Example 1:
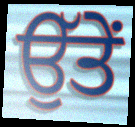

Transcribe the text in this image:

ਉੱਤੇਂ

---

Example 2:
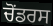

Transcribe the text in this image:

ਚੋਂਡਰਸ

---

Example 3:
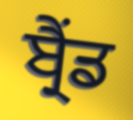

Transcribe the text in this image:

ਬ੍ਰੈਂਡ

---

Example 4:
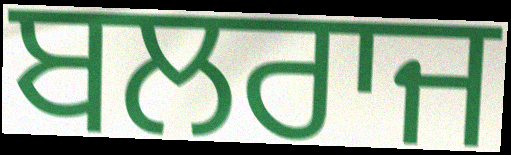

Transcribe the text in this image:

ਬਲਰਾਜ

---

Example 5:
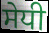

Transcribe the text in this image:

ਸੇਧੀ